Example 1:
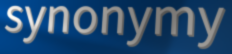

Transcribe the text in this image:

synonymy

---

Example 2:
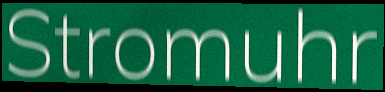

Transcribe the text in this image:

Stromuhr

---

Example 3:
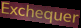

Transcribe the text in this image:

Exchequer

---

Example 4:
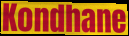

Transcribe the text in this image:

Kondhane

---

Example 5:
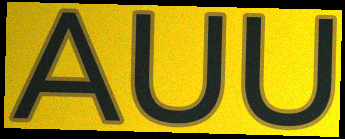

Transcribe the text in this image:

AUU